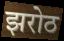
झरोठ